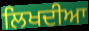
ਲਿਖਦੀਆ